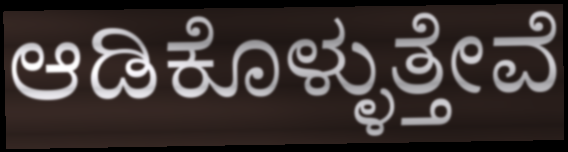
ಆಡಿಕೊಳ್ಳುತ್ತೇವೆ